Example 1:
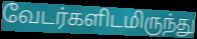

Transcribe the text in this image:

வேடர்களிடமிருந்து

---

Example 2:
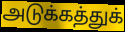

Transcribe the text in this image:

அடுக்கத்துக்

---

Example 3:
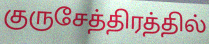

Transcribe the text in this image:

குருசேத்திரத்தில்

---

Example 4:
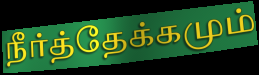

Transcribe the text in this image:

நீர்த்தேக்கமும்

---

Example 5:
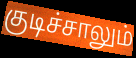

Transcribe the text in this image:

குடிச்சாலும்